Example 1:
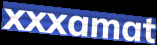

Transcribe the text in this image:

xxxamat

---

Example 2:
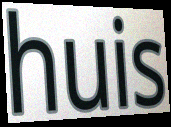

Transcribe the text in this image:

huis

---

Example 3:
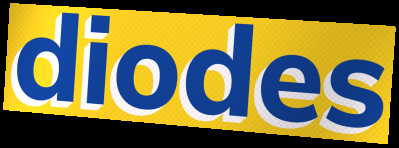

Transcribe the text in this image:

diodes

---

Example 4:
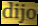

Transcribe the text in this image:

dijo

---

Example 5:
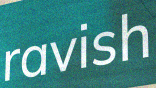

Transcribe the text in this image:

ravish